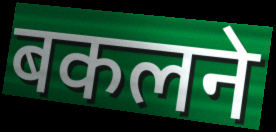
बकलने